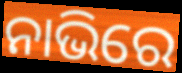
ନାଭିରେ